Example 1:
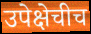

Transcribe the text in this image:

उपेक्षेचीच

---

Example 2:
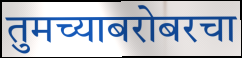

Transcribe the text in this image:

तुमच्याबरोबरचा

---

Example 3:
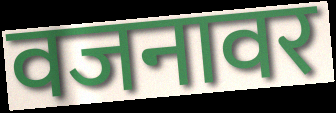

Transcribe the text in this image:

वजनावर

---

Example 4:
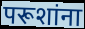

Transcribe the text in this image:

परूशांना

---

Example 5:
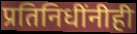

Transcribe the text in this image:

प्रतिनिधींनीही